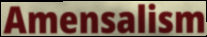
Amensalism